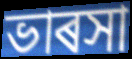
ভাৰসা